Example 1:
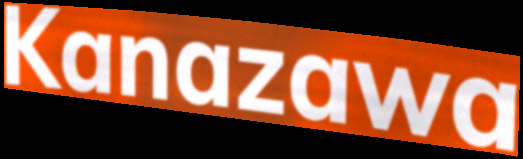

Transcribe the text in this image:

Kanazawa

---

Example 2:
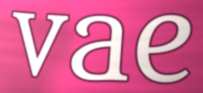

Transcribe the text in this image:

vae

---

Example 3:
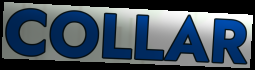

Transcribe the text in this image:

COLLAR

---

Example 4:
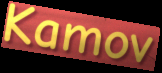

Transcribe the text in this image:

Kamov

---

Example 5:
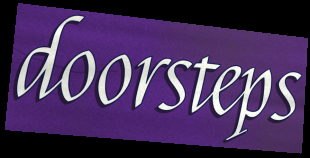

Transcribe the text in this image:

doorsteps